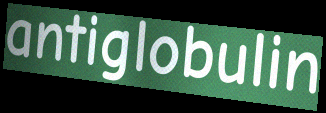
antiglobulin